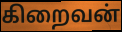
கிறைவன்